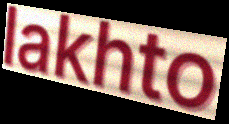
lakhto